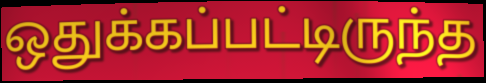
ஒதுக்கப்பட்டிருந்த